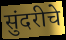
सुंदरीचे